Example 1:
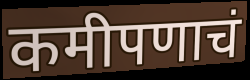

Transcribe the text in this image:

कमीपणाचं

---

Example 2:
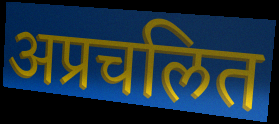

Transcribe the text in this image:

अप्रचलित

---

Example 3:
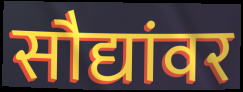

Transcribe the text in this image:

सौद्यांवर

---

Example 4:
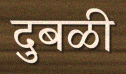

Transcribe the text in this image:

दुबळी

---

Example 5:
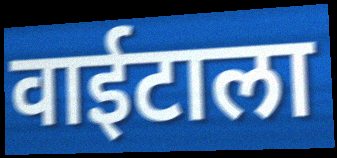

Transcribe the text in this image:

वाईटाला